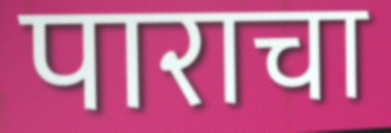
पाराचा